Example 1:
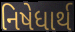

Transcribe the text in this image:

નિષેધાર્થ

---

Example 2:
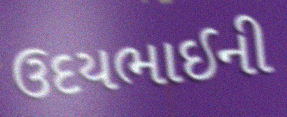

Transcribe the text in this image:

ઉદયભાઈની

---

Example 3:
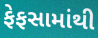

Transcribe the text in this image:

ફેફસામાંથી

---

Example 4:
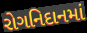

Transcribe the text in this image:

રોગનિદાનમાં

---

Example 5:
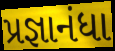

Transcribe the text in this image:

પ્રજ્ઞાનંધા